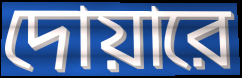
দোয়ারে